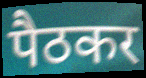
पैठकर